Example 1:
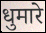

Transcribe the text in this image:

धुमारे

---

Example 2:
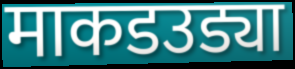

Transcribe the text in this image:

माकडउड्या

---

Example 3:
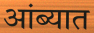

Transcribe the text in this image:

आंब्यात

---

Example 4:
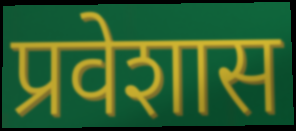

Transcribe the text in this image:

प्रवेशास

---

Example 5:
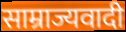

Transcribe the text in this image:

साम्राज्यवादी